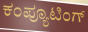
ಕಂಪ್ಯೂಟಿಂಗ್